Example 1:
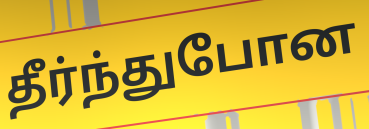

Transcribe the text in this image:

தீர்ந்துபோன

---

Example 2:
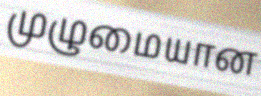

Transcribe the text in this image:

முழுமையான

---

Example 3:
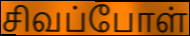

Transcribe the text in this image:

சிவப்போள்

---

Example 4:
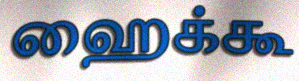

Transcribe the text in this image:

ஹைக்கூ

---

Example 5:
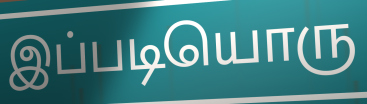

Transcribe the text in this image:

இப்படியொரு